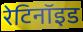
रेटिनॉइड